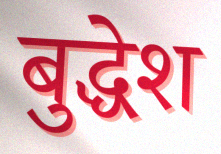
बुद्धेश